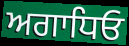
ਅਗਾਧਿਓ